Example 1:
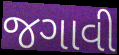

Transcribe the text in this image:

જગાવી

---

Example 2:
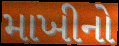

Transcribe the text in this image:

માખીનો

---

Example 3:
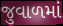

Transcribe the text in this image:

જુવાળમાં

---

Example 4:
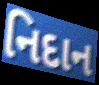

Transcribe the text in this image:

નિદાન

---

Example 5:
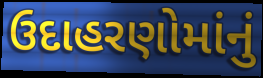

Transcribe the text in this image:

ઉદાહરણોમાંનું